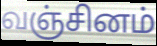
வஞ்சினம்